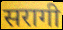
सरागी